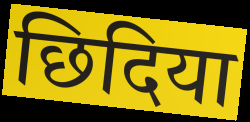
छिदिया